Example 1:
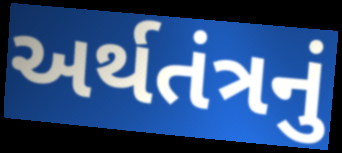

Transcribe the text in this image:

અર્થતંત્રનું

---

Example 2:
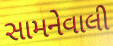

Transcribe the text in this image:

સામનેવાલી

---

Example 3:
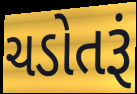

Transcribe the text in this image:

ચડોતરૂં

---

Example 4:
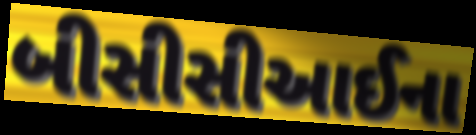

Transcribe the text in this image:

બીસીસીઆઈના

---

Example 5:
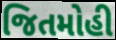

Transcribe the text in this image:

જિતમોહી